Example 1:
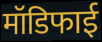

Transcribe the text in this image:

मॉडिफाई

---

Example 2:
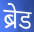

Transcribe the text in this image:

ब्रेड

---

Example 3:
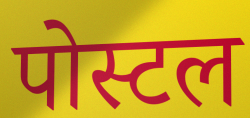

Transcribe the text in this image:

पोस्टल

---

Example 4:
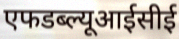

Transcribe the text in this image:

एफडब्ल्यूआईसीई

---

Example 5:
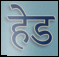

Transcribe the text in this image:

हेड